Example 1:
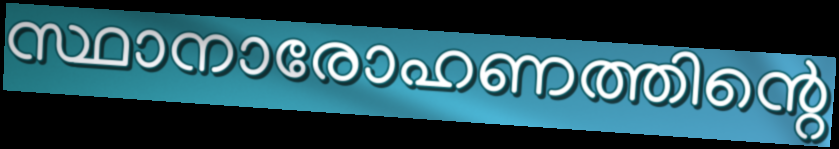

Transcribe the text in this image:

സ്ഥാനാരോഹണത്തിന്റെ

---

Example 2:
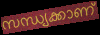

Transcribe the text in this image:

സന്ധ്യക്കാണ്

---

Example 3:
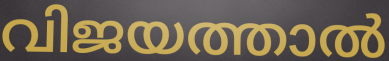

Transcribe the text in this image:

വിജയത്താൽ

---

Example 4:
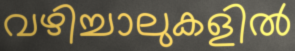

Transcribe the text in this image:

വഴിച്ചാലുകളിൽ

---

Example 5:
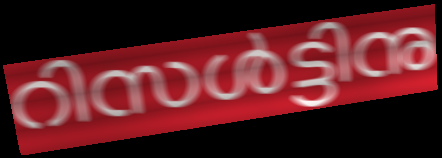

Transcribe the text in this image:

റിസൾട്ടിനു